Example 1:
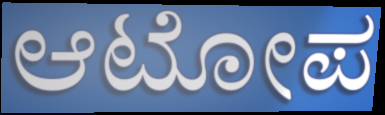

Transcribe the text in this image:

ಆಟೋಪ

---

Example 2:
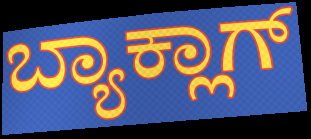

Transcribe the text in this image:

ಬ್ಯಾಕ್ಲಾಗ್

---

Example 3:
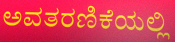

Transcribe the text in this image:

ಅವತರಣಿಕೆಯಲ್ಲಿ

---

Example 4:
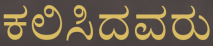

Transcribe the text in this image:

ಕಲಿಸಿದವರು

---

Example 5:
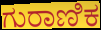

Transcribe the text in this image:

ಗುರಾಣಿಕ